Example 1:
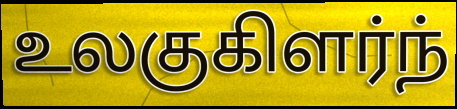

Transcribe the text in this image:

உலகுகிளர்ந்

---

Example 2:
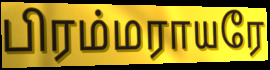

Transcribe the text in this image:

பிரம்மராயரே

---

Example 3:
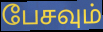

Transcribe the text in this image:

பேசவும்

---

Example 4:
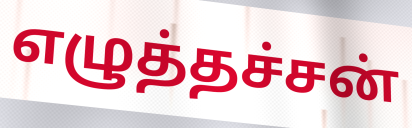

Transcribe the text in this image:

எழுத்தச்சன்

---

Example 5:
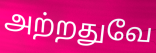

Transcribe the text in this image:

அற்றதுவே